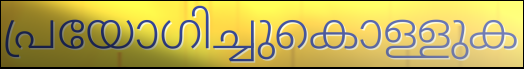
പ്രയോഗിച്ചുകൊള്ളുക